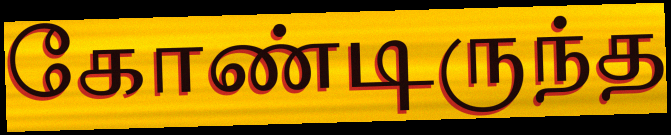
கோண்டிருந்த